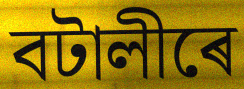
বটালীৰে